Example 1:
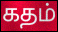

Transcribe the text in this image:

கதம்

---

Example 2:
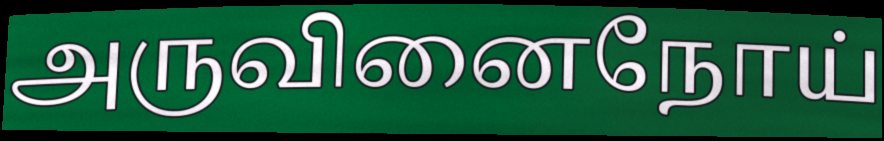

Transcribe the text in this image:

அருவினைநோய்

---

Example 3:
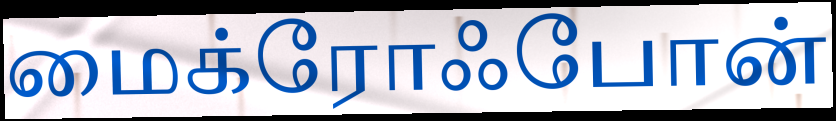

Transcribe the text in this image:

மைக்ரோஃபோன்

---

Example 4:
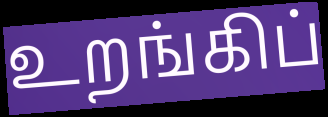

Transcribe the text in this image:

உறங்கிப்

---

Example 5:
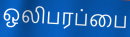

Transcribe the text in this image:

ஒலிபரப்பை